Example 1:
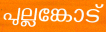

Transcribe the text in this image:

പുല്ലങ്കോട്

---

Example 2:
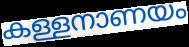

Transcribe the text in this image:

കള്ളനാണയം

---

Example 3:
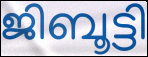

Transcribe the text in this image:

ജിബൂട്ടി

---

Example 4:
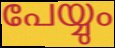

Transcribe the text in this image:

പേയ്യും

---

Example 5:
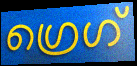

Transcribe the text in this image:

ഗ്രെഗ്